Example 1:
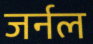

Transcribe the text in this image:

जर्नल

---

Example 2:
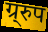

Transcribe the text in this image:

ग्र्रुप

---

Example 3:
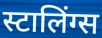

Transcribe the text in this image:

स्टालिंग्स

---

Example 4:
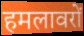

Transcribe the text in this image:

हमलावरों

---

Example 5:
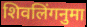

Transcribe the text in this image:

शिवलिंगनुमा